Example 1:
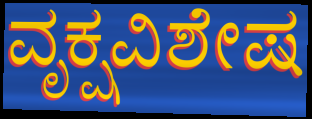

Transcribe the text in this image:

ವೃಕ್ಷವಿಶೇಷ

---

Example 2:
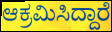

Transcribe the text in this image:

ಆಕ್ರಮಿಸಿದ್ದಾರೆ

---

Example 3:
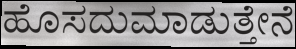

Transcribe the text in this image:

ಹೊಸದುಮಾಡುತ್ತೇನೆ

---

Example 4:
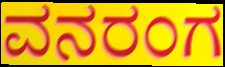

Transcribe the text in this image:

ವನರಂಗ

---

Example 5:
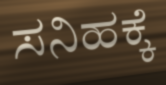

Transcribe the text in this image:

ಸನಿಹಕ್ಕೆ